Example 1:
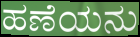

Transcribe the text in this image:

ಹಣೆಯನು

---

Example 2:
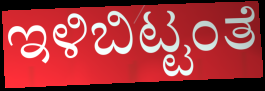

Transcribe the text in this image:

ಇಳಿಬಿಟ್ಟಂತೆ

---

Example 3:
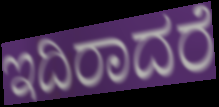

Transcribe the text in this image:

ಇದಿರಾದರೆ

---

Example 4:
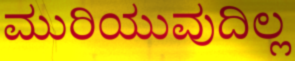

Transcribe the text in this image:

ಮುರಿಯುವುದಿಲ್ಲ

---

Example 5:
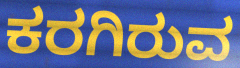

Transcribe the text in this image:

ಕರಗಿರುವ